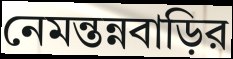
নেমন্তন্নবাড়ির